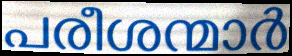
പരീശന്മാർ